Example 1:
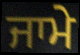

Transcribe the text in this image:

ਜਾਮੇ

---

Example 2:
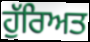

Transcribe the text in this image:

ਹੁੱਰਿਅਤ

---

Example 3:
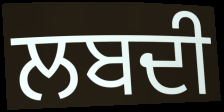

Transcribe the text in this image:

ਲਬਦੀ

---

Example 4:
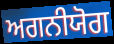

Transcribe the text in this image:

ਅਗਨੀਯੋਗ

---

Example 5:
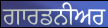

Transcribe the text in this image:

ਗਾਰਡਨੀਅਰ